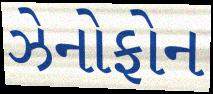
ઝેનોફોન